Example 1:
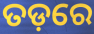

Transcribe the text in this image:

ତଡ଼ରେ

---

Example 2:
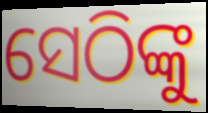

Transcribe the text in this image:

ସେଠିଙ୍କୁ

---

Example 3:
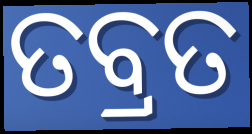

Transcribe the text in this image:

ତବ୍ରତ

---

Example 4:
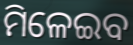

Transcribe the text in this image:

ମିଳେଇବ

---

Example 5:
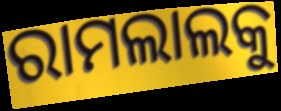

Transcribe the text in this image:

ରାମଲାଲକୁ